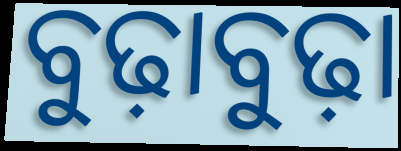
ବୁଢ଼ାବୁଢ଼ା